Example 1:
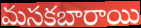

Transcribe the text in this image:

మసకబారాయి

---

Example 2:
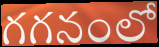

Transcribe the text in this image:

గగనంలో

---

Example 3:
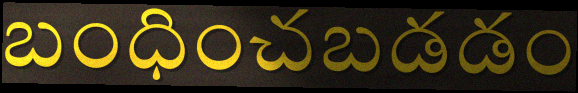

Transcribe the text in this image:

బంధించబడడం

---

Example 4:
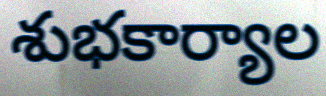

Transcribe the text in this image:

శుభకార్యాల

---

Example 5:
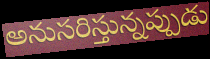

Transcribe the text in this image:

అనుసరిస్తున్నప్పుడు